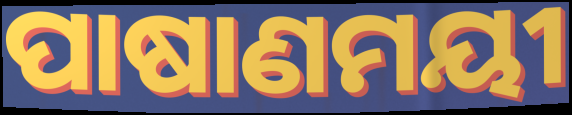
ପାଷାଣମୟୀ